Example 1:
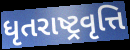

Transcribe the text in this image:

ધૃતરાષ્ટ્રવૃત્તિ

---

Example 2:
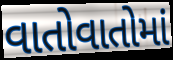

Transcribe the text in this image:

વાતોવાતોમાં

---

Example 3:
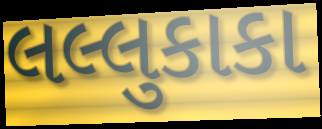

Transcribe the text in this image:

લલ્લુકાકા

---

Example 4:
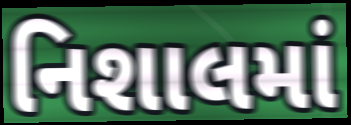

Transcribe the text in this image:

નિશાલમાં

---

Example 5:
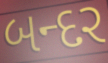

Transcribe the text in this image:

બન્દર